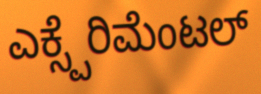
ಎಕ್ಸ್ಪೆರಿಮೆಂಟಲ್